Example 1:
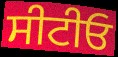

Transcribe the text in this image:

ਸੀਟੀਓ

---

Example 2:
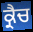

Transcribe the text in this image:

ਕ੍ਰੈਚ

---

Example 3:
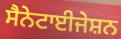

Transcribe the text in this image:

ਸੈਨੇਟਾਈਜੇਸ਼ਨ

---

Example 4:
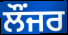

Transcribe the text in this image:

ਲੌਂਜਰ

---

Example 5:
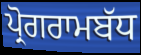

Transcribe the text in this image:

ਪ੍ਰੋਗਰਾਮਬੱਧ